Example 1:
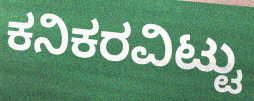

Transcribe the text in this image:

ಕನಿಕರವಿಟ್ಟು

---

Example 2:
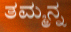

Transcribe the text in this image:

ತಮ್ಮನ್ನ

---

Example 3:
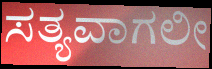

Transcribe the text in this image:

ಸತ್ಯವಾಗಲೀ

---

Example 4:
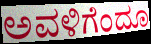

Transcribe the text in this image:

ಅವಳಿಗೆಂದೂ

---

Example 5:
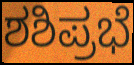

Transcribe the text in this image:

ಶಶಿಪ್ರಭೆ